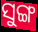
ସୁଙ୍ଗ